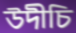
উদীচি